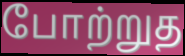
போற்றுத